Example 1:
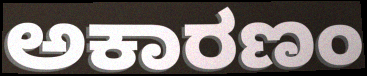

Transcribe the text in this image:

ಅಕಾರಣಂ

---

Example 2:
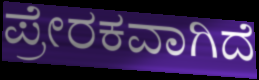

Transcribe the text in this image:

ಪ್ರೇರಕವಾಗಿದೆ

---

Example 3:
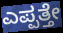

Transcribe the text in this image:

ಎಪ್ಪತ್ತೇ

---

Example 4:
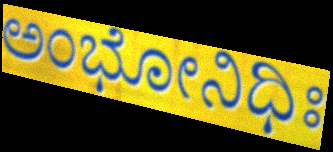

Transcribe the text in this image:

ಅಂಭೋನಿಧಿಃ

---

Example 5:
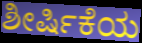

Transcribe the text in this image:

ಶೀರ್ಷಿಕೆಯ